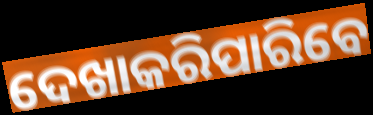
ଦେଖାକରିପାରିବେ